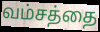
வம்சத்தை